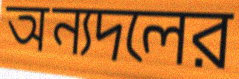
অন্যদলের